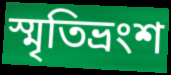
স্মৃতিভ্রংশ